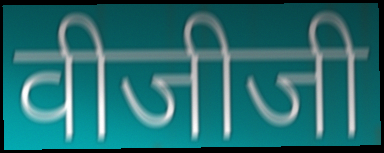
वीजीजी